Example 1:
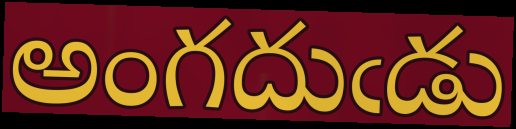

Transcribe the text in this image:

అంగదుఁడు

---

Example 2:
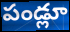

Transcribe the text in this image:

పండ్లూ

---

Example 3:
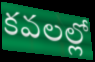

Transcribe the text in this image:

కవలల్లో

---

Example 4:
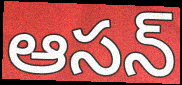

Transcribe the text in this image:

ఆసన్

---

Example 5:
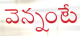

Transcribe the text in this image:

వెన్నంటే